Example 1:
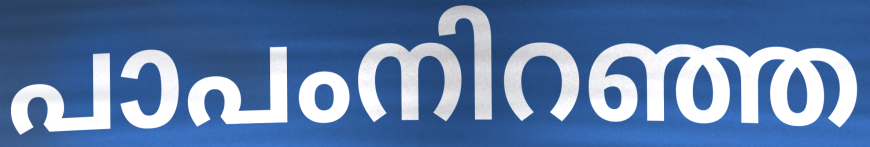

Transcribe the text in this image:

പാപംനിറഞ്ഞ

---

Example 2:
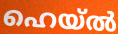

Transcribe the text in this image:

ഹെയ്ൽ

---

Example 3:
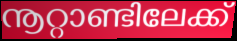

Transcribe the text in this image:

നൂറ്റാണ്ടിലേക്ക്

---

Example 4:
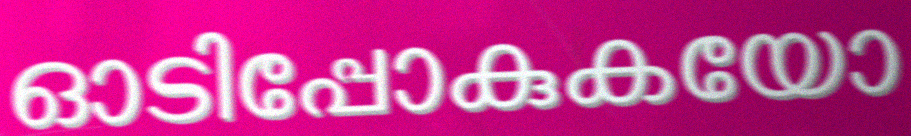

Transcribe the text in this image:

ഓടിപ്പോകുകയോ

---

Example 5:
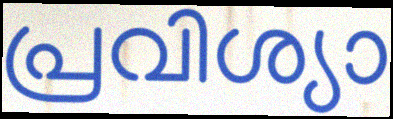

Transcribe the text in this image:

പ്രവിശ്യാ